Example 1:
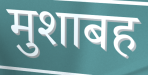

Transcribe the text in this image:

मुशाबह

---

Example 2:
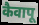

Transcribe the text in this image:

कैवापू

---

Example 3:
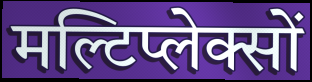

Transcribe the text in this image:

मल्टिप्लेक्सों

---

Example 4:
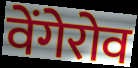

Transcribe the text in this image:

वेंगेरोव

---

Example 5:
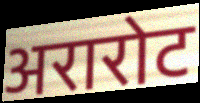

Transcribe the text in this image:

अरारोट